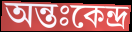
অন্তঃকেন্দ্র